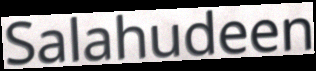
Salahudeen